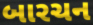
બારચન